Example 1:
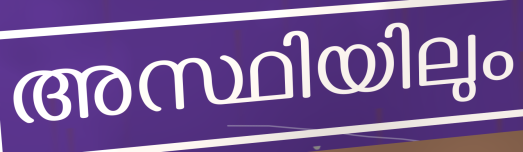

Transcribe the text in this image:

അസ്ഥിയിലും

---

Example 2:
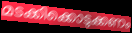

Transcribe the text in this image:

മടക്കിക്കൊടുക്കണം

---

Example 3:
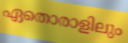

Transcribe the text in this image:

ഏതൊരാളിലും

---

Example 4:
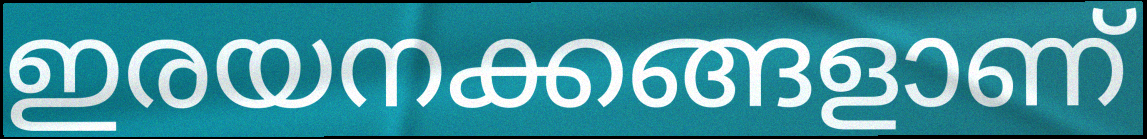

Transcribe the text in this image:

ഇരയനക്കങ്ങളാണ്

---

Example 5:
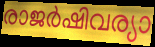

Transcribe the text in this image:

രാജർഷിവര്യാ